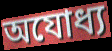
অযোধ্য